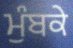
ਮੁੰਬਕੇ